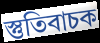
স্তুতিবাচক